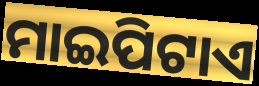
ମାଇପିଟାଏ